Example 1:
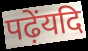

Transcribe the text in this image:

पढ़ेंयदि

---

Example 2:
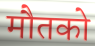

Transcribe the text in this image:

मौतको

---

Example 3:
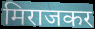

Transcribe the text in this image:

मिराजकर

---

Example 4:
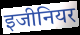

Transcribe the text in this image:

इजीनियर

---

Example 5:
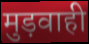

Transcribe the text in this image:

मुड़वाही